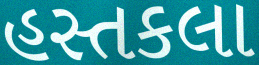
હસ્તકલા